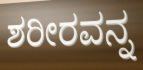
ಶರೀರವನ್ನ